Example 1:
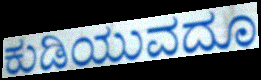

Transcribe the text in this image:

ಕುಡಿಯುವದೂ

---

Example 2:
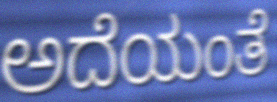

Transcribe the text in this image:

ಅದೆಯಂತೆ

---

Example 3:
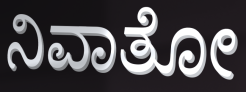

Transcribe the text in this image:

ನಿವಾತೋ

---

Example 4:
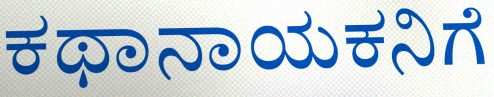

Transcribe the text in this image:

ಕಥಾನಾಯಕನಿಗೆ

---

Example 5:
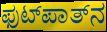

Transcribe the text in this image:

ಫುಟ್‌ಪಾತ್‌ನ